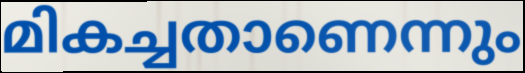
മികച്ചതാണെന്നും